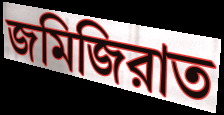
জমিজিরাত